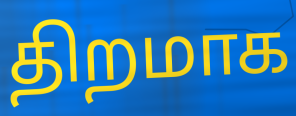
திறமாக